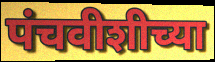
पंचवीशीच्या